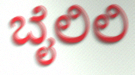
ಬೈಲಿಲಿ